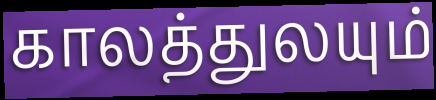
காலத்துலயும்